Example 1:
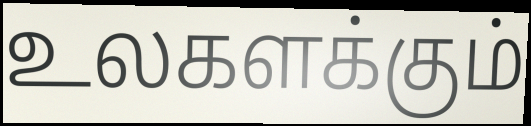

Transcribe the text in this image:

உலகளக்கும்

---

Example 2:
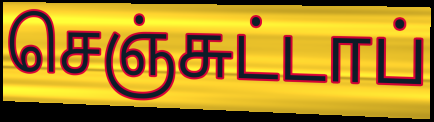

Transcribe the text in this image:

செஞ்சுட்டாப்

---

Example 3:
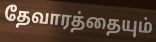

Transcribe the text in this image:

தேவாரத்தையும்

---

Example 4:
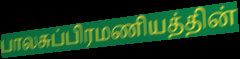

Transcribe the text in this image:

பாலசுப்பிரமணியத்தின்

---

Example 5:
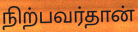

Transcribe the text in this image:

நிற்பவர்தான்